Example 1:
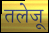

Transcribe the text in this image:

तलेजू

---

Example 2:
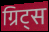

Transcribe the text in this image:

ग्रिट्स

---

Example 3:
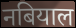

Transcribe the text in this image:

नबियाल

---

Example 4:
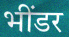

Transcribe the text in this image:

भींडर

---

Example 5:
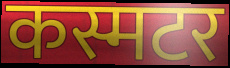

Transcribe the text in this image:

कस्मटर